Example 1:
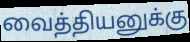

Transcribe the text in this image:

வைத்தியனுக்கு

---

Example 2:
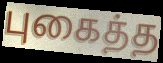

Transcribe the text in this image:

புகைத்த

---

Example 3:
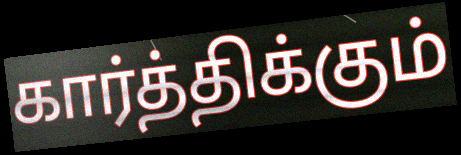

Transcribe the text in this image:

கார்த்திக்கும்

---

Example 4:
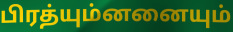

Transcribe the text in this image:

பிரத்யும்னனையும்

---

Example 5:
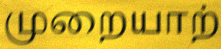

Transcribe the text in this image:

முறையாற்